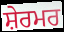
ਸ਼ੇਰਮਰ